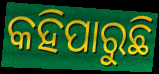
କହିପାରୁଛି